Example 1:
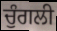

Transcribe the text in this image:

ਚੁੰਗਲੀ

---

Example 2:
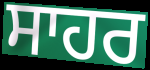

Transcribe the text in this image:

ਸਾਹਰ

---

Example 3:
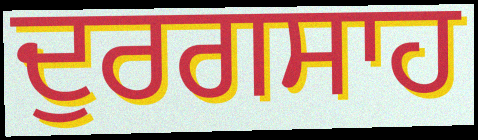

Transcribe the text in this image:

ਦੁਰਗਸਾਹ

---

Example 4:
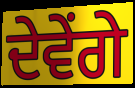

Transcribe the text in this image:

ਦੇਵੇਂਗੇ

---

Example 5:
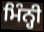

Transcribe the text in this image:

ਮਿੰਨ੍ਹੀ